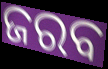
ଜରବ